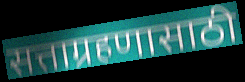
सत्ताग्रहणासाठी